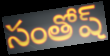
సంతోష్